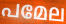
പമേല